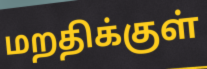
மறதிக்குள்